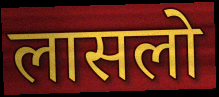
लासलो